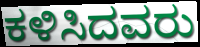
ಕಳಿಸಿದವರು